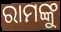
ରାମଙ୍କୁ